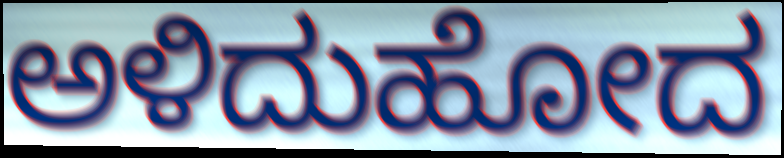
ಅಳಿದುಹೋದ